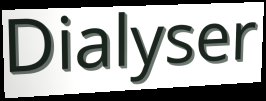
Dialyser